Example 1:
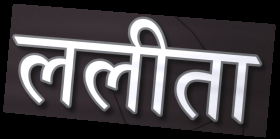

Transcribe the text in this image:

ललीता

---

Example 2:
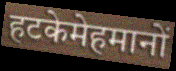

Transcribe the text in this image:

हटकेमेहमानों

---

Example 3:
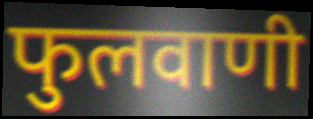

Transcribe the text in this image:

फुलवाणी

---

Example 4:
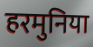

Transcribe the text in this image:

हरमुनिया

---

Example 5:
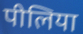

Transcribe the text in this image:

पीलिया